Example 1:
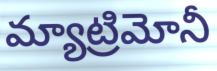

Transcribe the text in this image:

మ్యాట్రిమోనీ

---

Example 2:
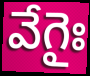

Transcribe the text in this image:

వేగైః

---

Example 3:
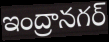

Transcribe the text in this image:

ఇంద్రానగర్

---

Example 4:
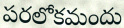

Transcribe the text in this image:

పరలోకమందు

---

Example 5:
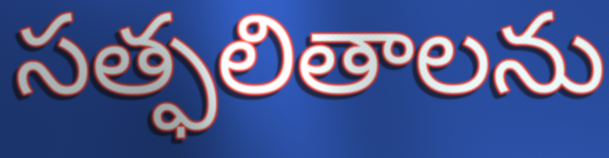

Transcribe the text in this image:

సత్ఫలితాలను